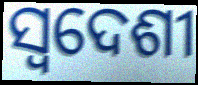
ସ୍ୱଦେଶୀ